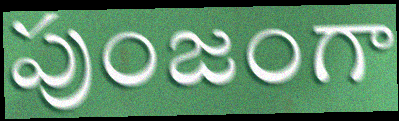
పుంజంగా